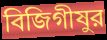
বিজিগীষুর